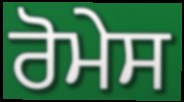
ਰੋਮੇਸ